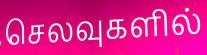
செலவுகளில்